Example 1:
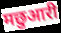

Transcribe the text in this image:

मछुआरी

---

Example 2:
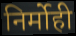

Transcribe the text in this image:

निर्मोही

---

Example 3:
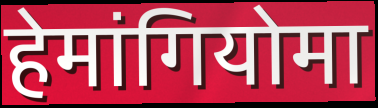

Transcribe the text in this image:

हेमांगियोमा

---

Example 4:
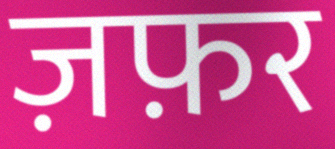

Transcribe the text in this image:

ज़फ़र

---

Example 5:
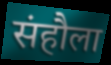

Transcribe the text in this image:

संहौला